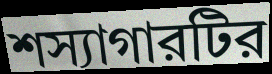
শস্যাগারটির